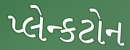
પ્લેન્કટોન